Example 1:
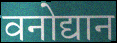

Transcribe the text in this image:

वनोद्यान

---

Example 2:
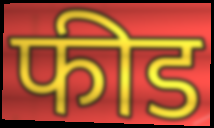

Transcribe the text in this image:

फीड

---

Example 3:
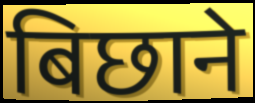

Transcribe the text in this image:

बिछाने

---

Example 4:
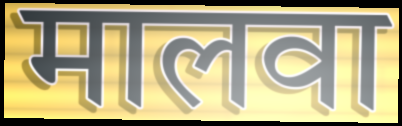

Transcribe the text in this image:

मालवा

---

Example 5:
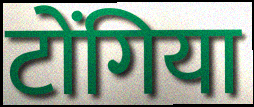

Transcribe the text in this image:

टोंगिया